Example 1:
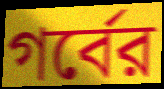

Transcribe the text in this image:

গর্বের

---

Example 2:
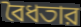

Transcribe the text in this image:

বৈধতার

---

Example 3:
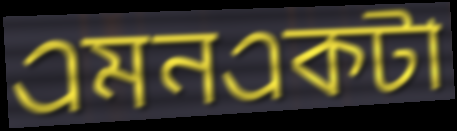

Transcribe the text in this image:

এমনএকটা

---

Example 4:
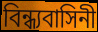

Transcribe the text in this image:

বিন্ধ্যবাসিনী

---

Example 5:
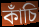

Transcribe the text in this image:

কাঁচি